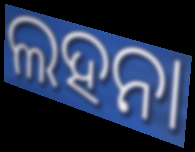
ଲହନା